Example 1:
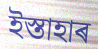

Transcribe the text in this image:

ইস্তাহাৰ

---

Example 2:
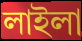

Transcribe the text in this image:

লাইলা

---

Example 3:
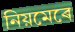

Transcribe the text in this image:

নিয়মেৰে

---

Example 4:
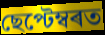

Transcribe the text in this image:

ছেপ্টেম্বৰত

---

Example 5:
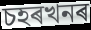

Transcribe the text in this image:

চহৰখনৰ